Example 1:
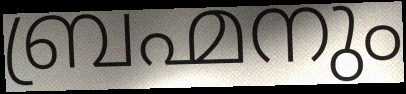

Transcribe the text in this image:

ബ്രഹ്മനും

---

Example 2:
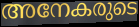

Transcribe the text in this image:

അനേകരുടെ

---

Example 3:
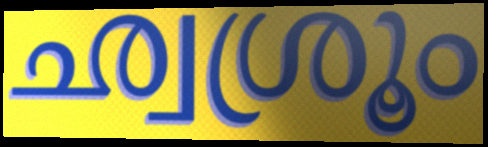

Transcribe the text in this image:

ഛ്വശ്രൂം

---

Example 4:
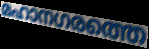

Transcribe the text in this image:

മഹാനഗരത്തെ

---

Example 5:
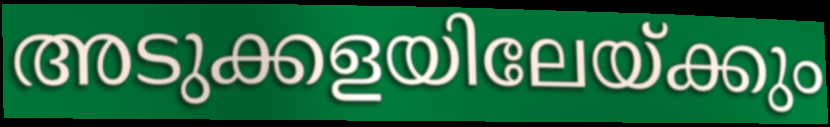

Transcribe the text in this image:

അടുക്കളയിലേയ്ക്കും